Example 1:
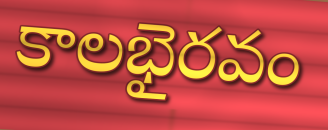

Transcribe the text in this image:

కాలభైరవం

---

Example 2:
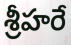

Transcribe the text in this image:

శ్రీహరే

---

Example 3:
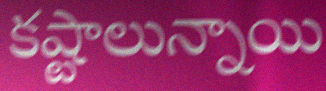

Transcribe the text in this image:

కష్టాలున్నాయి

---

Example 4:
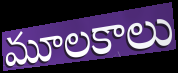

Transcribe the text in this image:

మూలకాలు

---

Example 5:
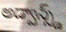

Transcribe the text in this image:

అడ్వాన్స్డ్